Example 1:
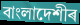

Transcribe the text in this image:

বাংলাদেশীৰ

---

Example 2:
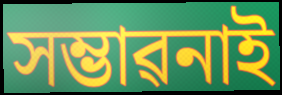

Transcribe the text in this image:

সম্ভাৱনাই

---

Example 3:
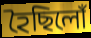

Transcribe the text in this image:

হৈছিলোঁ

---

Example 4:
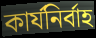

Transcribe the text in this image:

কাৰ্যনিৰ্বাহ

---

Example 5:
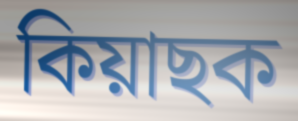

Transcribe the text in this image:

কিয়াছক